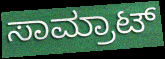
ಸಾಮ್ರಾಟ್